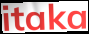
itaka